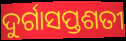
ଦୁର୍ଗାସପ୍ତଶତୀ